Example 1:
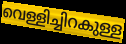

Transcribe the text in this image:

വെള്ളിച്ചിറകുള്ള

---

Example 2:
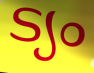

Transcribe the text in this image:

ട്യം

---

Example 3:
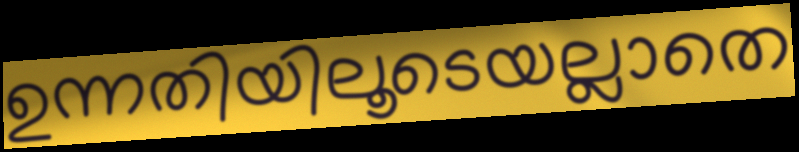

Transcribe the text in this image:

ഉന്നതിയിലൂടെയല്ലാതെ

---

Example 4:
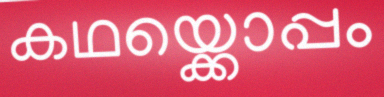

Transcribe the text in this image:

കഥയ്ക്കൊപ്പം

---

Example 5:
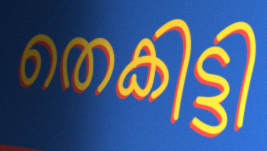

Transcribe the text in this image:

തെകിട്ടി